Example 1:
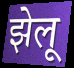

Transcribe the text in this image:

झेलू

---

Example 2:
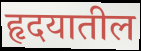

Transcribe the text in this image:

हृदयातील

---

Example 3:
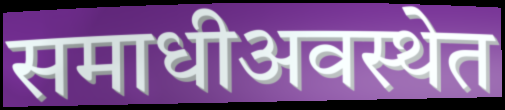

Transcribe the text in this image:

समाधीअवस्थेत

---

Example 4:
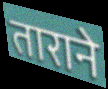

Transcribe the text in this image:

ताराने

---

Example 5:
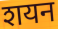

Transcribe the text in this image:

शयन